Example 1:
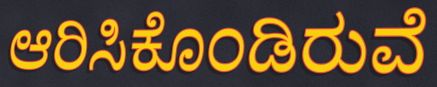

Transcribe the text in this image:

ಆರಿಸಿಕೊಂಡಿರುವೆ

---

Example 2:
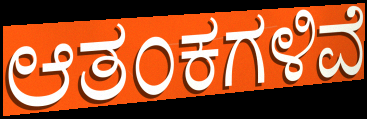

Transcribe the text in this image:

ಆತಂಕಗಳಿವೆ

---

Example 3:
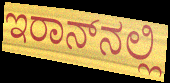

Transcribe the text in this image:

ಇರಾನ್‌ನಲ್ಲಿ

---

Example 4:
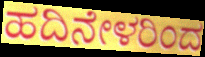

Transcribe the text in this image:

ಹದಿನೇಳರಿಂದ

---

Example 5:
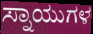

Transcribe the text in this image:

ಸ್ನಾಯುಗಳ